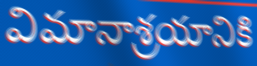
విమానాశ్రయానికి